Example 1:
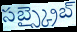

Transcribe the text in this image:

సబ్స్క్రైబ్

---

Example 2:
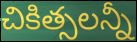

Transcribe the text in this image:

చికిత్సలన్నీ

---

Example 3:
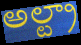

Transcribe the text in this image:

అల్ట్రా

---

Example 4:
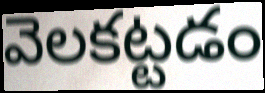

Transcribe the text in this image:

వెలకట్టడం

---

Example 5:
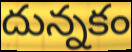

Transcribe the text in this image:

దున్నకం